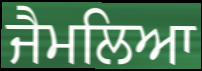
ਜੈਮਲਿਆ